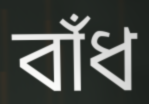
বাঁধ